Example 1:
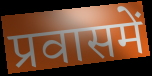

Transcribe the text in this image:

प्रवासमें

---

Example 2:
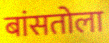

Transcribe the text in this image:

बांसतोला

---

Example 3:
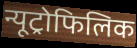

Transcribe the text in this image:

न्यूट्रोफिलिक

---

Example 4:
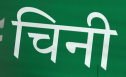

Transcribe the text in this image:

चिनी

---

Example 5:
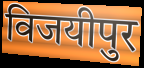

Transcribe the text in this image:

विजयीपुर